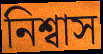
নিশ্বাস